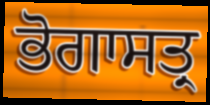
ਭੋਗਾਸਤ੍ਰ